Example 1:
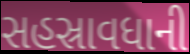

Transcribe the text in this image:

સહસ્રાવધાની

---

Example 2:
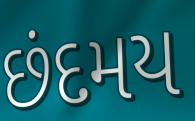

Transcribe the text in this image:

છંદમય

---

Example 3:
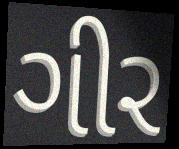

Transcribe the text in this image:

ગીર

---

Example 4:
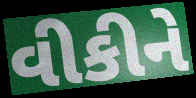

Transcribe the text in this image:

વીકીને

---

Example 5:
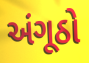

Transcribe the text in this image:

અંગૂઠો